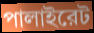
পালাইরেট